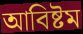
আবিষ্টম